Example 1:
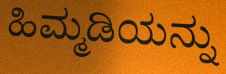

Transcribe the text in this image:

ಹಿಮ್ಮಡಿಯನ್ನು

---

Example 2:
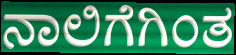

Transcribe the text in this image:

ನಾಲಿಗೆಗಿಂತ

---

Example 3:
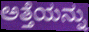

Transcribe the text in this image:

ಅತ್ತೆಯನ್ನು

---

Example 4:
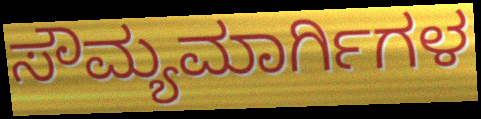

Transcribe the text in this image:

ಸೌಮ್ಯಮಾರ್ಗಿಗಳ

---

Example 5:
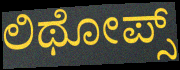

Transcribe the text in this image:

ಲಿಥೋಪ್ಸ್